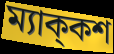
ম্যাক্‌কশ